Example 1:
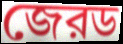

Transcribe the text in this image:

জেরড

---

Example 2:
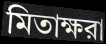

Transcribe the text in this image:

মিতাক্ষরা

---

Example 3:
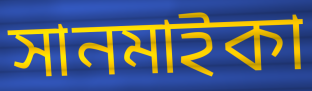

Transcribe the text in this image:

সানমাইকা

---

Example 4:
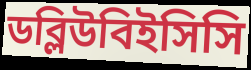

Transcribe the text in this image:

ডব্লিউবিইসিসি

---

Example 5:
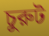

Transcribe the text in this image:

চুরুট